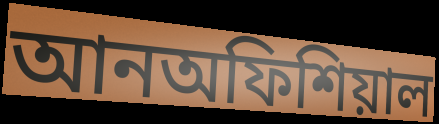
আনঅফিশিয়াল